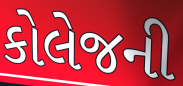
કોલેજની